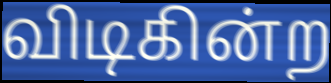
விடிகின்ற